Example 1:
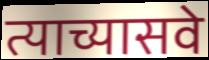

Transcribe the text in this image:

त्याच्यासवे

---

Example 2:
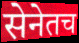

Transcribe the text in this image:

सेनेतच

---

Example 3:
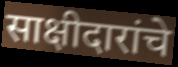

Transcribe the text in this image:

साक्षीदारांचे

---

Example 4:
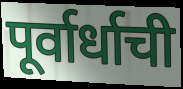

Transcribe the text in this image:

पूर्वार्धाची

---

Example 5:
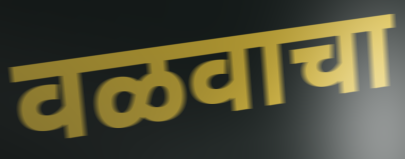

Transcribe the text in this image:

वळवाचा